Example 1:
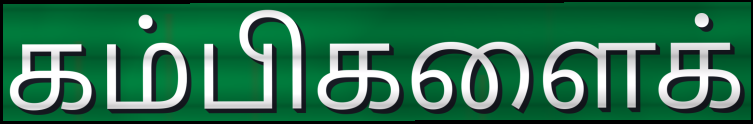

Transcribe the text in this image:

கம்பிகளைக்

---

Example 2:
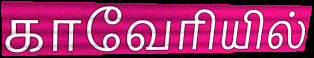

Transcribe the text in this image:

காவேரியில்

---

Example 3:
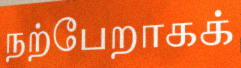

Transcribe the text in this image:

நற்பேறாகக்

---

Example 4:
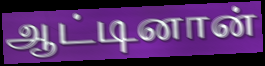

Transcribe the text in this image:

ஆட்டினான்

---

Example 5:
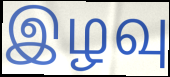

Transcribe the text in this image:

இழவு